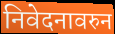
निवेदनावरुन